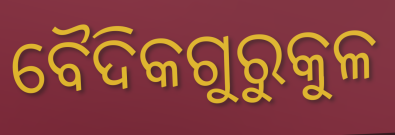
ବୈଦିକଗୁରୁକୁଳ